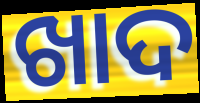
ଖାଦ